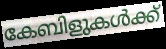
കേബിളുകൾക്ക്